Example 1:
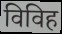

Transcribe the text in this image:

विविह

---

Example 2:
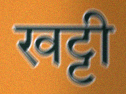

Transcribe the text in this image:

खट्टी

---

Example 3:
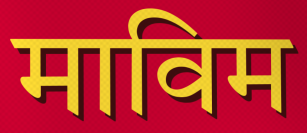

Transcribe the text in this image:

माविम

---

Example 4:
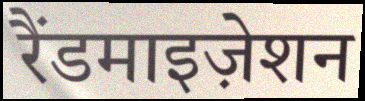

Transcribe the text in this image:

रैंडमाइज़ेशन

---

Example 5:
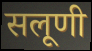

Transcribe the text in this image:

सलूणी